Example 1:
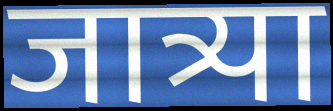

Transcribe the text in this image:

जात्र्या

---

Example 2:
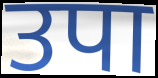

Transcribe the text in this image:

उपा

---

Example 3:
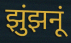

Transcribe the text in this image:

झुंझनूं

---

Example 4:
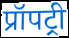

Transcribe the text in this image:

प्रॉपट्री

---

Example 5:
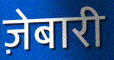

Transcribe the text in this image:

ज़ेबारी